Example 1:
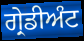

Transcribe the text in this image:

ਗ੍ਰੇਡੀਅੰਟ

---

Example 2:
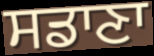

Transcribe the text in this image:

ਸਡਾਣਾ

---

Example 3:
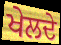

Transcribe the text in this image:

ਖੇਲਦੇ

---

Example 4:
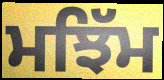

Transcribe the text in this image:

ਮਝਿੱਮ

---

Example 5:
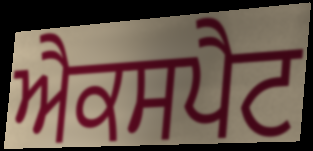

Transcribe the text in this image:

ਐਕਸਪੈਟ